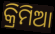
କ୍ରିମିଆ